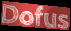
Dofus